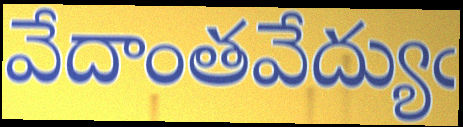
వేదాంతవేద్యుఁ